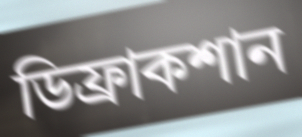
ডিফ্রাকশান